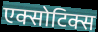
एक्सोटिक्स